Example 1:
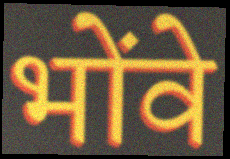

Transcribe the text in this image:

भोंवे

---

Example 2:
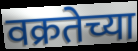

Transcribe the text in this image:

वक्रतेच्या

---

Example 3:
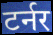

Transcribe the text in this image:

टर्नर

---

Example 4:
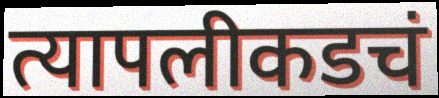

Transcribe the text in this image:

त्यापलीकडचं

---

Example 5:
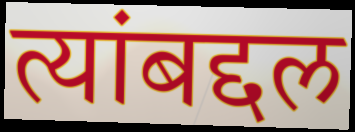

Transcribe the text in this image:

त्यांबद्दल